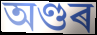
অণ্ডৰ